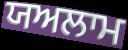
ਯਅਲਾਮ